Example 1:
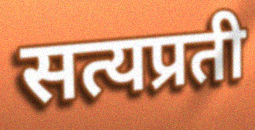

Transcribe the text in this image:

सत्यप्रती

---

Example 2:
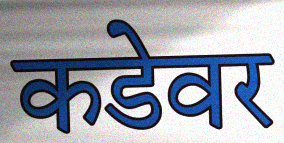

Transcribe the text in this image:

कडेवर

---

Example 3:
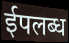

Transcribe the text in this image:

ईपलब्ध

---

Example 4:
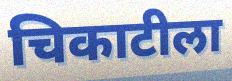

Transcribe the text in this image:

चिकाटीला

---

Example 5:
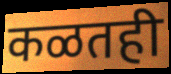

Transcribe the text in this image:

कळतही